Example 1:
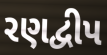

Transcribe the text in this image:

રણદ્વીપ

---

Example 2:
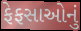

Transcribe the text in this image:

ફેફસાઓનું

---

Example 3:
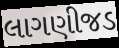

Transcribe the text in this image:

લાગણીજડ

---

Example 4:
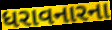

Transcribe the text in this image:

ધરાવનારના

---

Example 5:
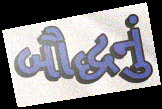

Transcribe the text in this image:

બૌદ્ધનું